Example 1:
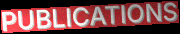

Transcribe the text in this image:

PUBLICATIONS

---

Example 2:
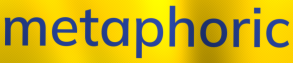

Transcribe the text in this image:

metaphoric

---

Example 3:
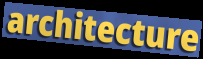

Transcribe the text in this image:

architecture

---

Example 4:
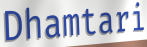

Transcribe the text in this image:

Dhamtari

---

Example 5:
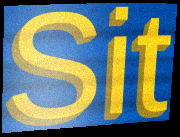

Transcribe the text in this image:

Sit